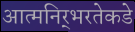
आत्मनिर्भरतेकडे